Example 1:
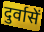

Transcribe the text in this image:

दुर्वासें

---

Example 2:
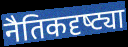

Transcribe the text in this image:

नैतिकदृष्ट्या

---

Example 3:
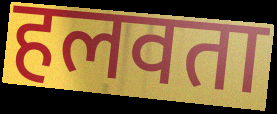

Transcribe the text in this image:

हलवता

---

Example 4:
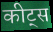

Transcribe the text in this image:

कीट्‌स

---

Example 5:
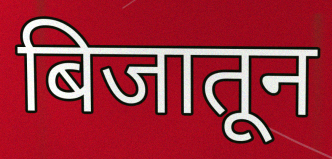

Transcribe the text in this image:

बिजातून